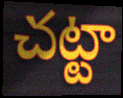
చట్టా